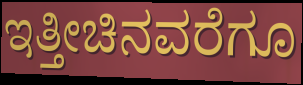
ಇತ್ತೀಚಿನವರೆಗೂ